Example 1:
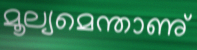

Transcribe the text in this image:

മൂല്യമെന്താണു്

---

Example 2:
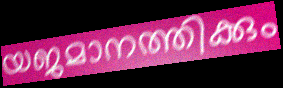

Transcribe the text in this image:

യജമാനത്തിക്കും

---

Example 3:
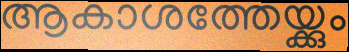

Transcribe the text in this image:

ആകാശത്തേയ്ക്കും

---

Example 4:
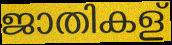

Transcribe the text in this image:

ജാതികള്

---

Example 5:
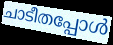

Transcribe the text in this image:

ചാടീതപ്പോൾ